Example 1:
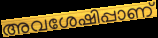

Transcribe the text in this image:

അവശേഷിപ്പാണ്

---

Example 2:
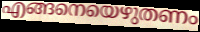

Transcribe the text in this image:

എങ്ങനെയെഴുതണം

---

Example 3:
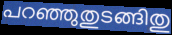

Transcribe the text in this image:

പറഞ്ഞുതുടങ്ങിതു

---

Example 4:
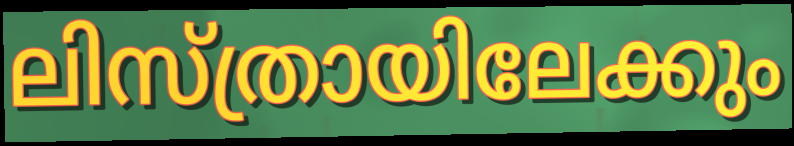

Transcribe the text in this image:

ലിസ്ത്രായിലേക്കും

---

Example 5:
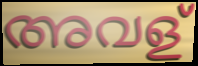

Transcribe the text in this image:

അവള്